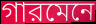
গারমেনে